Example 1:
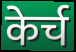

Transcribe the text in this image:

केर्च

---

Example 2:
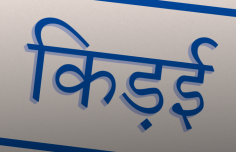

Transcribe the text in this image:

किड़ई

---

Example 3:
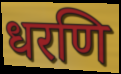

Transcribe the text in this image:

धरणि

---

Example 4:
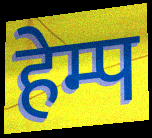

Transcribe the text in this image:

हेम्प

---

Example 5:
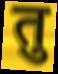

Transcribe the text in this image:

तु